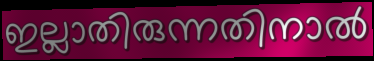
ഇല്ലാതിരുന്നതിനാൽ